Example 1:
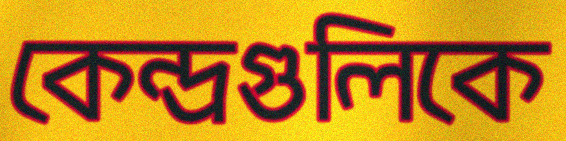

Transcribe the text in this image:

কেন্দ্রগুলিকে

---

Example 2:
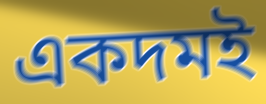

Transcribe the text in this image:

একদমই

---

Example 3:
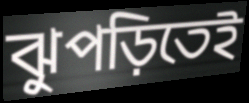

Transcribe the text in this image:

ঝুপড়িতেই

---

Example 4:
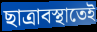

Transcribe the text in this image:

ছাত্রাবস্থাতেই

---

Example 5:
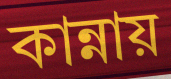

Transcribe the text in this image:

কান্নায়